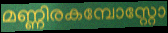
മണ്ണിരകമ്പോസ്റ്റോ